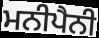
ਮਨੀਪੈਨੀ